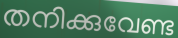
തനിക്കുവേണ്ട